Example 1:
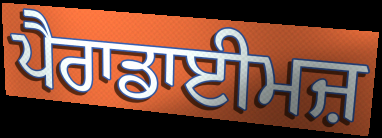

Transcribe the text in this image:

ਪੈਰਾਡਾਈਮਜ਼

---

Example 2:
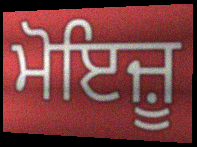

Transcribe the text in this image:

ਮੋਇਜ਼ੂ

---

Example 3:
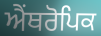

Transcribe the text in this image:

ਐਂਥਰੋਪਿਕ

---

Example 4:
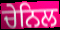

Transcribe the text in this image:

ਚੇਨਿਲ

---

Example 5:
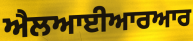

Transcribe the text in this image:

ਐਲਆਈਆਰਆਰ